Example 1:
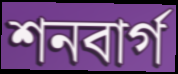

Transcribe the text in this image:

শনবার্গ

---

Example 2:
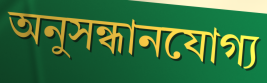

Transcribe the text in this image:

অনুসন্ধানযোগ্য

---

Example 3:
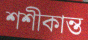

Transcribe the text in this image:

শশীকান্ত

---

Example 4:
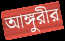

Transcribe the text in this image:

আঙ্গুরীর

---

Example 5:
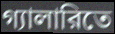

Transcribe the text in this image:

গ্যালারিতে